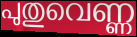
പുതുവെണ്ണ